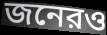
জনেরও